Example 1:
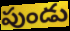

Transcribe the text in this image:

పుండు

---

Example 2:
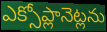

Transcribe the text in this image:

ఎక్సోప్లానెట్లను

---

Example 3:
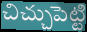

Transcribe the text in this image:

చిచ్చుపెట్టి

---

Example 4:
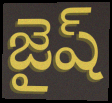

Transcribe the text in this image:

జైష్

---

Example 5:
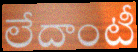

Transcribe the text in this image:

లేదాంటీ